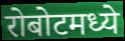
रोबोटमध्ये